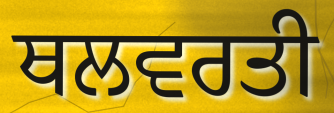
ਥਲਵਰਤੀ